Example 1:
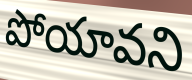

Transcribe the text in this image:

పోయావని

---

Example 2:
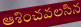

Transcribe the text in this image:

ఆశించవలసిన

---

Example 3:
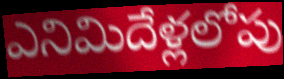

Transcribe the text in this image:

ఎనిమిదేళ్లలోపు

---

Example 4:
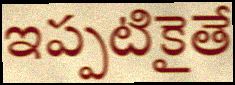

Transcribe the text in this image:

ఇప్పటికైతే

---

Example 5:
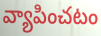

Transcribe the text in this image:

వ్యాపించటం